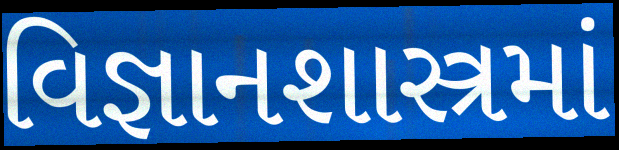
વિજ્ઞાનશાસ્ત્રમાં